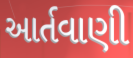
આર્તવાણી